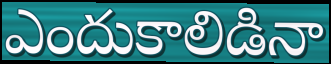
ఎందుకాలిడినా